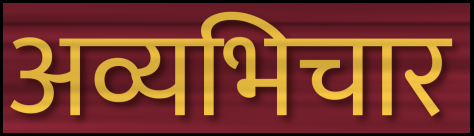
अव्यभिचार